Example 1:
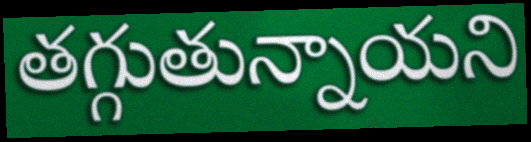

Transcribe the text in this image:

తగ్గుతున్నాయని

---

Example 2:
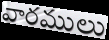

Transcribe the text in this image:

వారములు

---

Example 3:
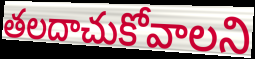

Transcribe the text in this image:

తలదాచుకోవాలని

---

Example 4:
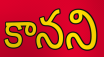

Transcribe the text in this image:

కానని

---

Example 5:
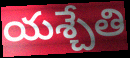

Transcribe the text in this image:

యశ్చేతి